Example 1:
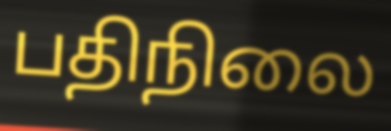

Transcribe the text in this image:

பதிநிலை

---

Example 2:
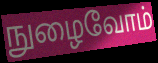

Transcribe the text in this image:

நுழைவோம்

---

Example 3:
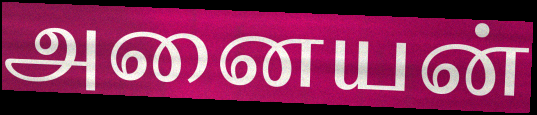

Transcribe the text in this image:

அனையன்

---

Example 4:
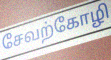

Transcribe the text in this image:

சேவற்கோழி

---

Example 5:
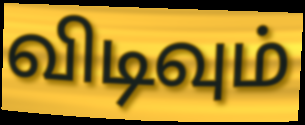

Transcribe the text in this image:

விடிவும்